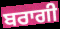
ਬਰਾਗੀ